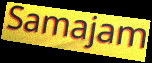
Samajam